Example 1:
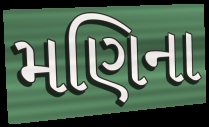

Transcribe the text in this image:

મણિના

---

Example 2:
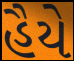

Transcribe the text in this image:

હૈયે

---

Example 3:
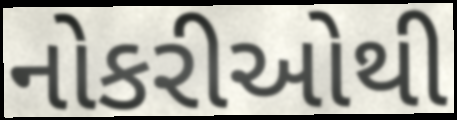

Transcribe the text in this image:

નોકરીઓથી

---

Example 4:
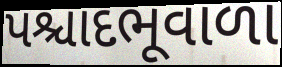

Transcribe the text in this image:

પશ્ચાદભૂવાળા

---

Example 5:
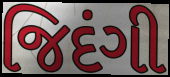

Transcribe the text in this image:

જિદંગી